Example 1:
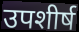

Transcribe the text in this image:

उपशीर्ष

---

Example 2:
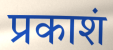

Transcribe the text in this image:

प्रकाशं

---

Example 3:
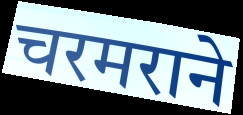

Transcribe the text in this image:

चरमराने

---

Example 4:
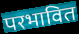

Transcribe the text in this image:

परभावित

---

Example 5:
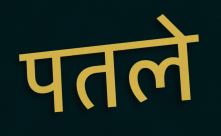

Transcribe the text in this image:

पतले